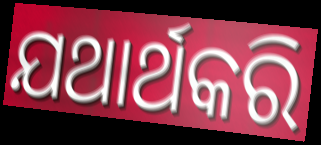
ଯଥାର୍ଥକରି